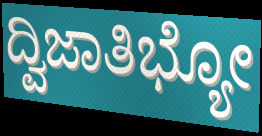
ದ್ವಿಜಾತಿಭ್ಯೋ